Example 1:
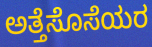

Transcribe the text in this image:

ಅತ್ತೆಸೊಸೆಯರ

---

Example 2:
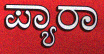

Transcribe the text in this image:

ಪ್ಯಾರಾ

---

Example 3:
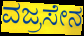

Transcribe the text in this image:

ವಜ್ರಸೇನ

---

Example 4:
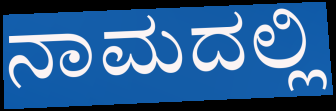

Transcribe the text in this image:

ನಾಮದಲ್ಲಿ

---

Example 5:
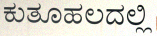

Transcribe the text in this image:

ಕುತೂಹಲದಲ್ಲಿ